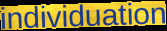
individuation